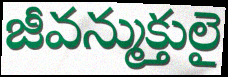
జీవన్ముక్తులై